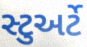
સ્ટુઅર્ટે